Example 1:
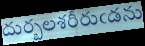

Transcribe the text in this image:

దుర్బలశరీరుఁడను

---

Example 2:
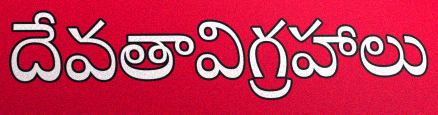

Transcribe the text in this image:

దేవతావిగ్రహాలు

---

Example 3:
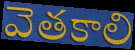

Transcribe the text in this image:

వెతకాలి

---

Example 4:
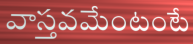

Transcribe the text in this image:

వాస్తవమేంటంటే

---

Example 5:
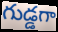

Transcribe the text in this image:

గుడ్డగా